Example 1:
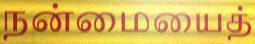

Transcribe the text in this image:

நன்மையைத்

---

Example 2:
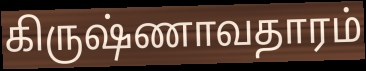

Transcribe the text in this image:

கிருஷ்ணாவதாரம்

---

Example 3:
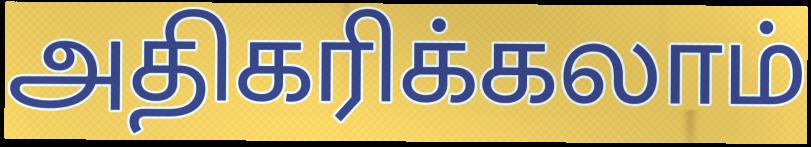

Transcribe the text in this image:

அதிகரிக்கலாம்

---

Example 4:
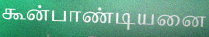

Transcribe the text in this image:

கூன்பாண்டியனை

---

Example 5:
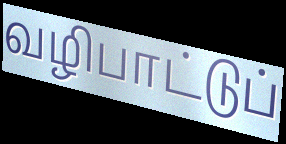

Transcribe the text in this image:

வழிபாட்டுப்